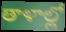
తాళాల్లో